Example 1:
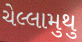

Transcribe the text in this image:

ચેલ્લામુથુ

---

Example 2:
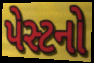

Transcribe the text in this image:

પેસ્ટનો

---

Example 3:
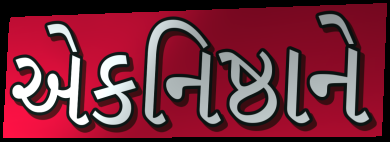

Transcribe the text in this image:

એકનિષ્ઠાને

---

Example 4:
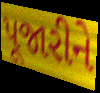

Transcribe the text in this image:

પૂજારીને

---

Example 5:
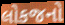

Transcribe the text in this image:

લોકજનો